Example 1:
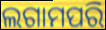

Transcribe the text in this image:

ଲଗାମପରି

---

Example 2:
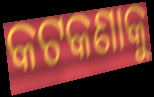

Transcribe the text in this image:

କଟକଣାକୁ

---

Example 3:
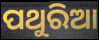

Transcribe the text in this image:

ପଥୁରିଆ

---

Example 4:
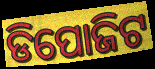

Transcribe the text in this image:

ଡିପୋଜିଟ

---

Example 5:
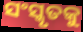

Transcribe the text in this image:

ସଂସ୍କୃତକୁ